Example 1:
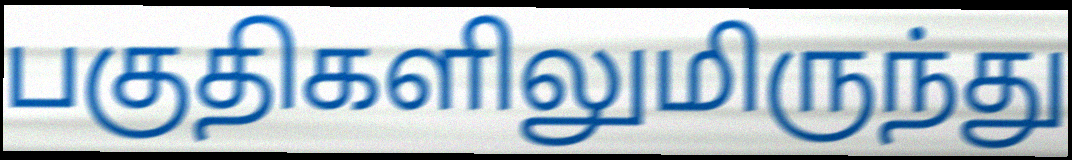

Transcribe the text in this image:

பகுதிகளிலுமிருந்து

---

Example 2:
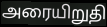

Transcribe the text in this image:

அரையிறுதி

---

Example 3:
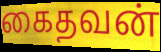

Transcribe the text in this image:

கைதவன்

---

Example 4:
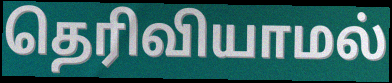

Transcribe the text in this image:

தெரிவியாமல்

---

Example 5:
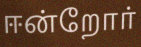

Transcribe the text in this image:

ஈன்றோர்